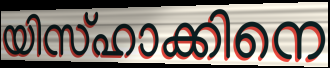
യിസ്ഹാക്കിനെ